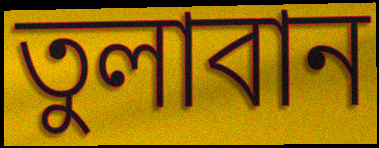
তুলাবান